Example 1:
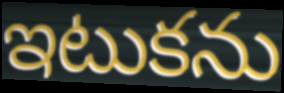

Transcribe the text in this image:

ఇటుకను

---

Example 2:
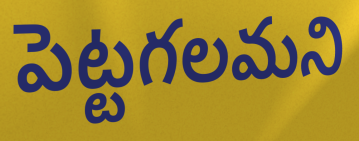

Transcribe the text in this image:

పెట్టగలమని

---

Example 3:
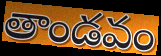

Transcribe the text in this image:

తాండవం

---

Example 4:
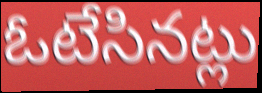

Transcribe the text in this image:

ఓటేసినట్లు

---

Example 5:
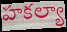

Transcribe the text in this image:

హకల్యా